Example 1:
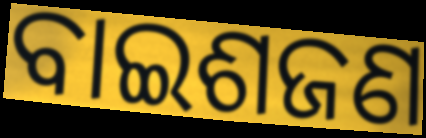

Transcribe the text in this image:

ବାଇଶଜଣ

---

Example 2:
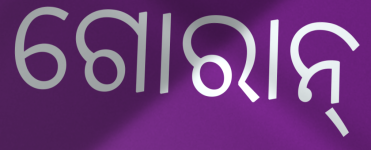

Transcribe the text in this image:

ଗୋରାନ୍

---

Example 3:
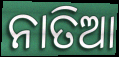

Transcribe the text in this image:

ନାତିଆ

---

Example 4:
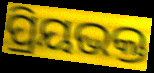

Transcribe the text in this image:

ପ୍ରିୟଭକ୍ତ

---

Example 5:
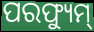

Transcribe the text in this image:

ପରଫ୍ୟୁମ୍